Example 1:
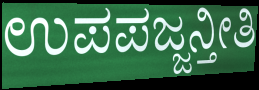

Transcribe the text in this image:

ಉಪಪಜ್ಜನ್ತೀತಿ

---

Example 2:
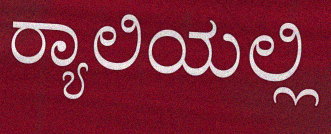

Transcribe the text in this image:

ರ‍್ಯಾಲಿಯಲ್ಲಿ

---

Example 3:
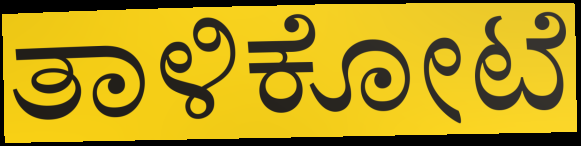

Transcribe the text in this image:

ತಾಳಿಕೋಟೆ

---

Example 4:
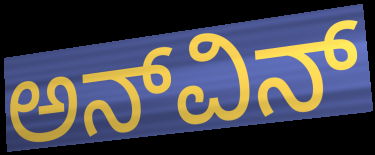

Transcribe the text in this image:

ಅನ್‌ವಿನ್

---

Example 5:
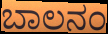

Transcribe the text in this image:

ಬಾಲನಂ